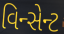
વિન્સેન્ટ